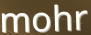
mohr